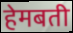
हेमबती